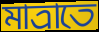
মাত্ৰাতে